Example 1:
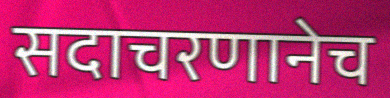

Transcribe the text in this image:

सदाचरणानेच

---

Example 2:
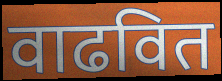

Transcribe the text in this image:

वाढवित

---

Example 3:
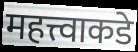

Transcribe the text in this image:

महत्त्वाकडे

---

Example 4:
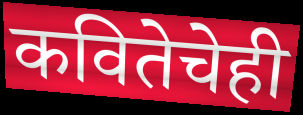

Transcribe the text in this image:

कवितेचेही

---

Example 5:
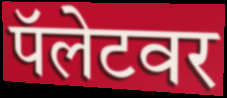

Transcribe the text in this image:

पॅलेटवर